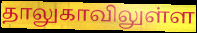
தாலுகாவிலுள்ள